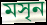
মসৃন